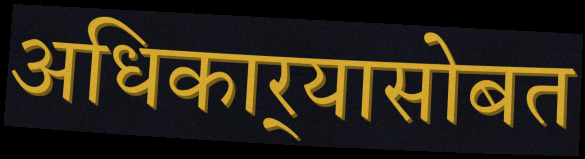
अधिकार्यासोबत